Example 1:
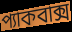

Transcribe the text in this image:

প্যাকবাক্স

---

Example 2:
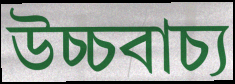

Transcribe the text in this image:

উচ্চবাচ্য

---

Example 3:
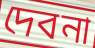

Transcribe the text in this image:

দেবনা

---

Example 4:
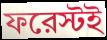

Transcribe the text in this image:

ফরেস্টই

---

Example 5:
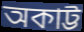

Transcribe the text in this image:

অকাট্ট